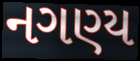
નગણ્ય